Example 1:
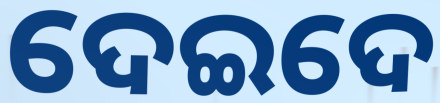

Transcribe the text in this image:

ଦେଇଦେ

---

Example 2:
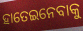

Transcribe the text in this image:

ହାତେଇନେବାକୁ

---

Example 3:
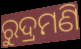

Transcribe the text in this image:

ରୁଦ୍ରମଣି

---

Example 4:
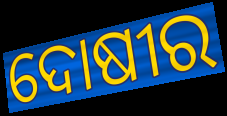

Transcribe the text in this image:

ଦୋଷୀର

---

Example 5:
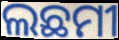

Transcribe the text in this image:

ଲଛମୀ